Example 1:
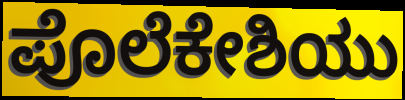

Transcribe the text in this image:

ಪೊಲೆಕೇಶಿಯು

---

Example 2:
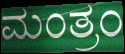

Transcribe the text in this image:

ಮಂತ್ರಂ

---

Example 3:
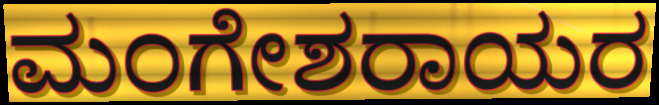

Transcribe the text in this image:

ಮಂಗೇಶರಾಯರ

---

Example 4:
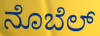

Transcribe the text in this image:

ನೊಬೆಲ್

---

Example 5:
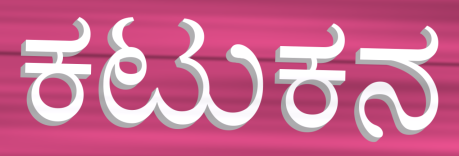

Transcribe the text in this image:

ಕಟುಕನ